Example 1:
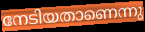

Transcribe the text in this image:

നേടിയതാണെന്നു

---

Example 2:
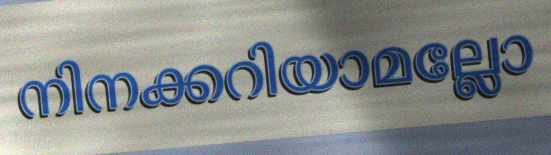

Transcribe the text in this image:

നിനക്കറിയാമല്ലോ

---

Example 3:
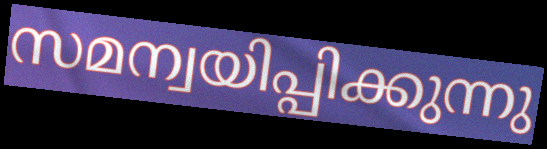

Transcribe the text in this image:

സമന്വയിപ്പിക്കുന്നു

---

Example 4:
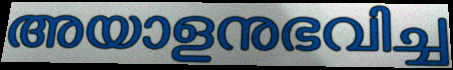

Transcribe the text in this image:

അയാളനുഭവിച്ച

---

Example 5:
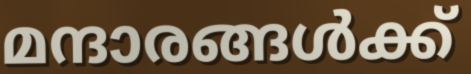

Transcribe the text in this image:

മന്ദാരങ്ങൾക്ക്